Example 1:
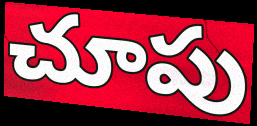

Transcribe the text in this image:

చూపు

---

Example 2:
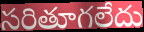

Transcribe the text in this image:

సరితూగలేదు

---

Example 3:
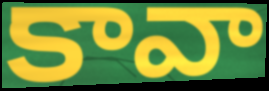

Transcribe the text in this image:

కావా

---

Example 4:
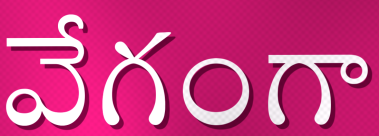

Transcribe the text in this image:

వేగంగా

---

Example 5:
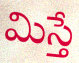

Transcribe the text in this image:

మిస్తే